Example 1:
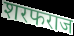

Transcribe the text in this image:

शरफराज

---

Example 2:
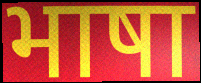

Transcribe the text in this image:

भाषा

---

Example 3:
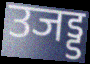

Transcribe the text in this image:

उजड्ड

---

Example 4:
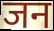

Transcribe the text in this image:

जन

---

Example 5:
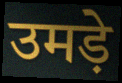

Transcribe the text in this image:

उमड़े